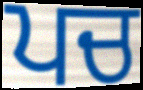
ਪਚ